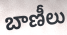
బాణీలు